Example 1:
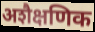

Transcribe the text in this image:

अशैक्षणिक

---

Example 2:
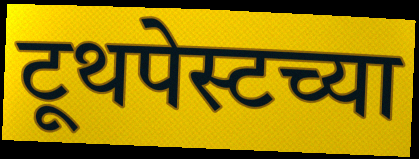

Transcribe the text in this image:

टूथपेस्टच्या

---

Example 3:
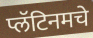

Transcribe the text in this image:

प्लॅटिनमचे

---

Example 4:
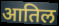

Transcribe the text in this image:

आतिल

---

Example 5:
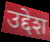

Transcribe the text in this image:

उद्देश